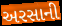
અરસાની